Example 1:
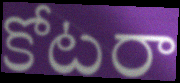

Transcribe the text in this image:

కోటరా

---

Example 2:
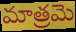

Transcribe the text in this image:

మాత్రమె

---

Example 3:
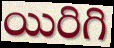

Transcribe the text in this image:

యిరిగి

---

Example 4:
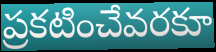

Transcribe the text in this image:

ప్రకటించేవరకూ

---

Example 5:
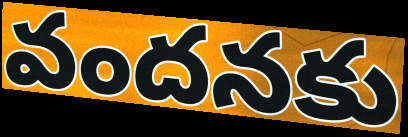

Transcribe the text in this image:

వందనకు